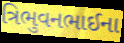
ત્રિભુવનભાઈના